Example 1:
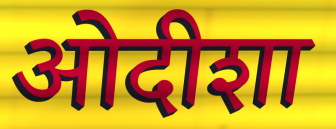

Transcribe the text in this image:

ओदीशा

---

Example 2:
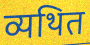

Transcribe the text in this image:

व्यथित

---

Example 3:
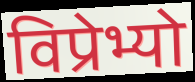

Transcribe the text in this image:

विप्रेभ्यो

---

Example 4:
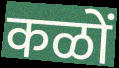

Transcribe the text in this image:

कळों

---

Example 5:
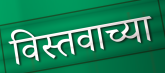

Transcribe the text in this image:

विस्तवाच्या